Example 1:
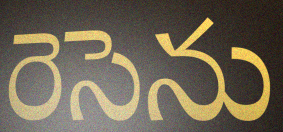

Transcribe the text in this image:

రెసెను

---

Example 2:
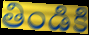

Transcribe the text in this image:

తిండికి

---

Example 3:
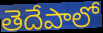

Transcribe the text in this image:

తెదేపాలో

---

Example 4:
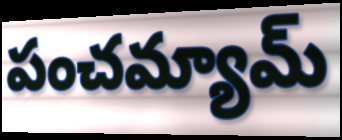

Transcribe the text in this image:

పంచమ్యామ్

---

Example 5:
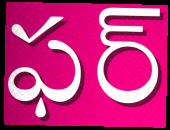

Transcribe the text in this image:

ఫర్